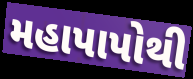
મહાપાપોથી